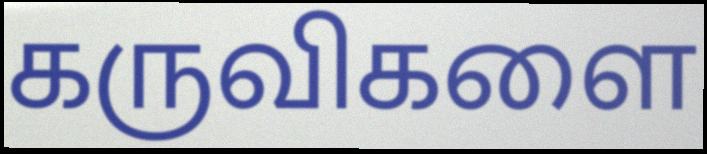
கருவிகளை